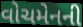
વોચમેનની